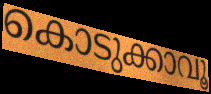
കൊടുക്കാവൂ